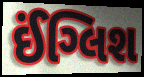
ઈંગ્લિશ